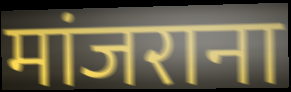
मांजराना